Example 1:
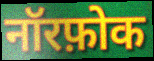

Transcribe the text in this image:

नॉरफ़ोक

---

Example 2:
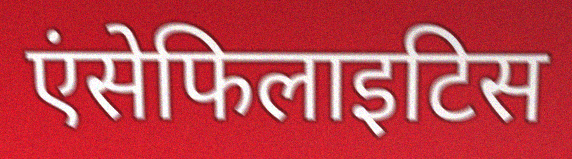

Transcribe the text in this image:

एंसेफिलाइटिस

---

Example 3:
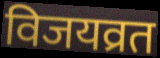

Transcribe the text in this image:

विजयव्रत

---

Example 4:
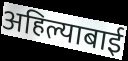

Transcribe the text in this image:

अहिल्याबाई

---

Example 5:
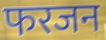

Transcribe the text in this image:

फरजन